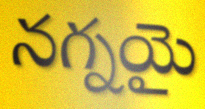
నగ్నయై